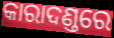
କାରାଦଣ୍ଡରେ